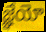
జ్ఞేయో